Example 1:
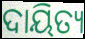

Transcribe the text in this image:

ଦାୟିତ୍ୟ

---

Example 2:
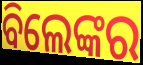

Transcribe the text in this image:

ବିଲେଙ୍କର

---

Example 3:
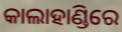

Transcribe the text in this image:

କାଲାହାଣ୍ଡିରେ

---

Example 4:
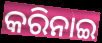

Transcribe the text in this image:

କରିନାଇ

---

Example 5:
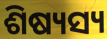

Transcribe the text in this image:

ଶିଷ୍ୟସ୍ୟ